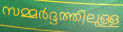
സമ്മർദ്ദത്തിലുള്ള